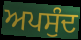
ਅਪਸੁੰਦ